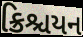
ક્રિશ્ચયન